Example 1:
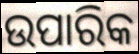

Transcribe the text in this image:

ଉପାରିକ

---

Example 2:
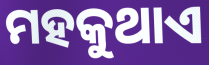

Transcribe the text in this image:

ମହକୁଥାଏ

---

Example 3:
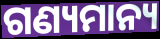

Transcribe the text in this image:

ଗଣ୍ୟମାନ୍ୟ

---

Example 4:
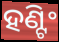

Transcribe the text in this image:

ହଣ୍ଟିଂ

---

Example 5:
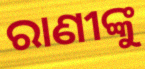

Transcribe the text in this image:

ରାଣୀଙ୍କୁ